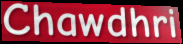
Chawdhri